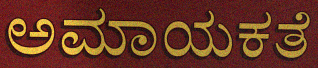
ಅಮಾಯಕತೆ